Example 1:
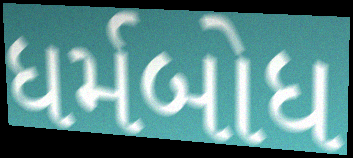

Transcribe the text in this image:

ધર્મબોધ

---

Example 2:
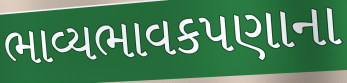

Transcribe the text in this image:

ભાવ્યભાવકપણાના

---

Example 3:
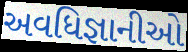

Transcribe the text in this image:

અવધિજ્ઞાનીઓ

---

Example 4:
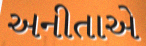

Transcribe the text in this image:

અનીતાએ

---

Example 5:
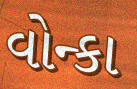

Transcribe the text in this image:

વોન્કા